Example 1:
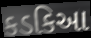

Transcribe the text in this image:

કડકિઆ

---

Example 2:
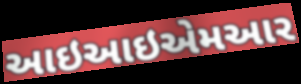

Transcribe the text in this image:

આઇઆઇએમઆર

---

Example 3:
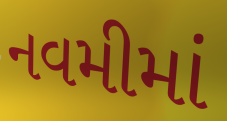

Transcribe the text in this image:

નવમીમાં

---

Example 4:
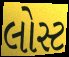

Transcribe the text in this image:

લોસ્ટ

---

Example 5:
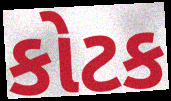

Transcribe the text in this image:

કોટક